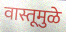
वास्तूमुळे